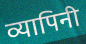
व्यापिनी